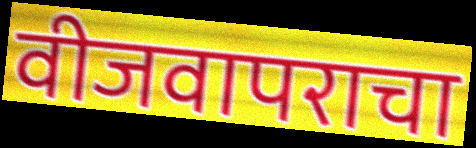
वीजवापराचा